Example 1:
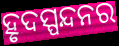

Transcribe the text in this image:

ହୃଦସ୍ପନ୍ଦନର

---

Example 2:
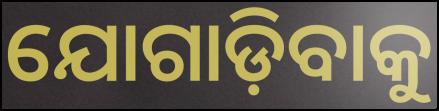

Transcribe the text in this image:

ଯୋଗାଡ଼ିବାକୁ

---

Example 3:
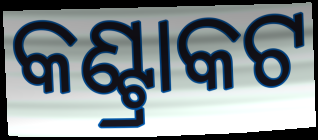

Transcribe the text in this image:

କଣ୍ଟ୍ରାକଟ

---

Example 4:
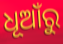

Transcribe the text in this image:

ଧୂଆଁରୁ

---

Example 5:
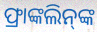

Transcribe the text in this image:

ଫ୍ରାଙ୍କଲିନ୍‌ଙ୍କ